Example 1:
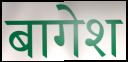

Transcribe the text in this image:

बागेश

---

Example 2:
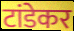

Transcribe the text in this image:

टांडेकर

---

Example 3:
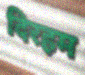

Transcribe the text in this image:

दिरहम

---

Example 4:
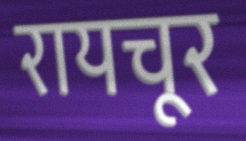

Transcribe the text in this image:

रायचूर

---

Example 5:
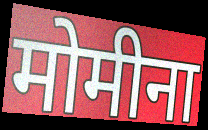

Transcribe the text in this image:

मोमीना